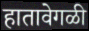
हातावेगळी